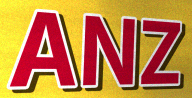
ANZ